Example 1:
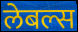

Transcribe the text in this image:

लेबल्स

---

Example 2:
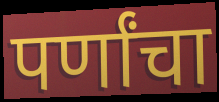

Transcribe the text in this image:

पर्णांचा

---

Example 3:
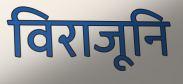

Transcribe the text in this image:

विराजूनि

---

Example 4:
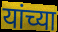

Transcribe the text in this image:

यांच्या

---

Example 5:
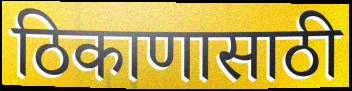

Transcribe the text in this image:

ठिकाणासाठी